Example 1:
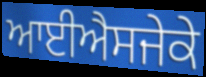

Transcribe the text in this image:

ਆਈਐਸਜੇਕੇ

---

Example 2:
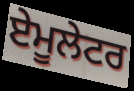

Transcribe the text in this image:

ਏਮੂਲੇਟਰ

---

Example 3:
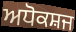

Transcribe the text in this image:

ਅਧੋਕਸ਼ਜ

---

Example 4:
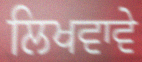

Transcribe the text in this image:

ਲਿਖਵਾਵੇ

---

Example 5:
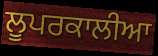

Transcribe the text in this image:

ਲੂਪਰਕਾਲੀਆ